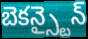
బెకన్స్టైన్